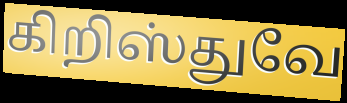
கிறிஸ்துவே